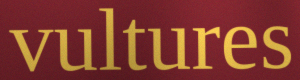
vultures